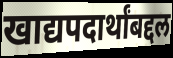
खाद्यपदार्थांबद्दल